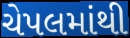
ચેપલમાંથી